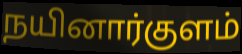
நயினார்குளம்